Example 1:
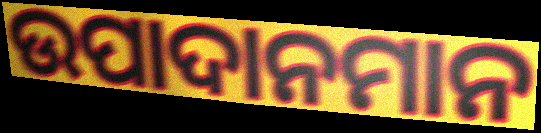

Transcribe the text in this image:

ଉପାଦାନମାନ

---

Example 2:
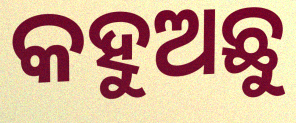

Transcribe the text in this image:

କହୁଅଛୁ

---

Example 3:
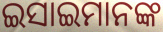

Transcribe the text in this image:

ଇସାଇମାନଙ୍କ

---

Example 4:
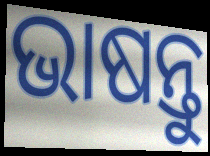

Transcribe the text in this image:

ଭାଷନ୍ତୁ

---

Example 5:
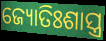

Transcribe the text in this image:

ଜ୍ୟୋତିଃଶାସ୍ତ୍ର